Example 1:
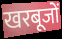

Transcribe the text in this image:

खरबूजों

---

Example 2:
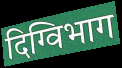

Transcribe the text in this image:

दिग्विभाग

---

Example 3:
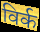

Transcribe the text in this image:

विर्क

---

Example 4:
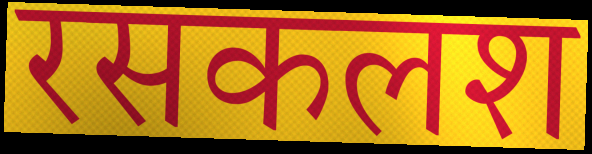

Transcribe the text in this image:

रसकलश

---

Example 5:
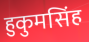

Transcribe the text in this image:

हुकुमसिंह